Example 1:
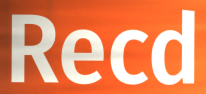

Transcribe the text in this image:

Recd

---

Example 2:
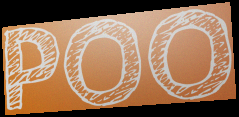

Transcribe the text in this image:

POO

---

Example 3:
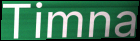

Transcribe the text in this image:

Timna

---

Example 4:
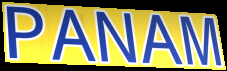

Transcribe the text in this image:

PANAM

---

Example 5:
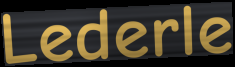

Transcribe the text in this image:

Lederle